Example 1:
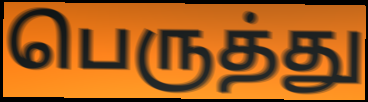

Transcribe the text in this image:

பெருத்து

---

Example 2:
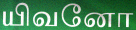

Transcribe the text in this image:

யிவனோ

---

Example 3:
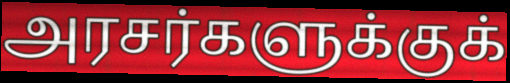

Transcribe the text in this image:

அரசர்களுக்குக்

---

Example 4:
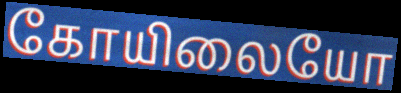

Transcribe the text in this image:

கோயிலையோ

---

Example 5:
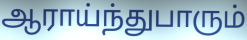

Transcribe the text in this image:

ஆராய்ந்துபாரும்